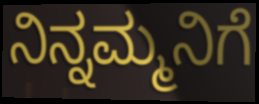
ನಿನ್ನಮ್ಮನಿಗೆ